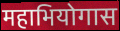
महाभियोगास